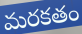
మరకతం